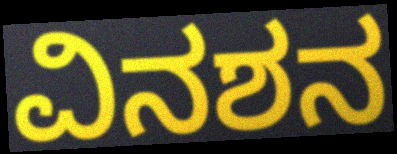
ವಿನಶನ